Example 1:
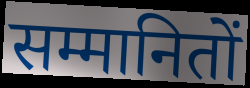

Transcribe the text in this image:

सम्मानितों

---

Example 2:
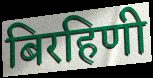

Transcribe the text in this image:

बिरहिणी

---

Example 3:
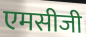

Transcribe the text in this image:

एमसीजी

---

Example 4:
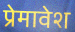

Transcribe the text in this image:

प्रेमावेश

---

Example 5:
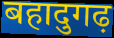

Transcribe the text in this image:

बहादुगढ़